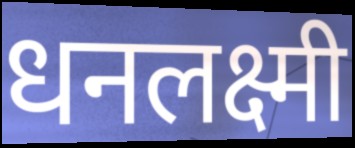
धनलक्ष्मी